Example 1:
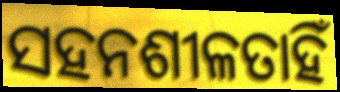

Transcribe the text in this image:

ସହନଶୀଳତାହିଁ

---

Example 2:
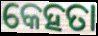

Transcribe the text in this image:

କେହତା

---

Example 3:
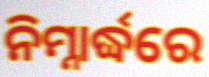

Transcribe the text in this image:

ନିମ୍ନାର୍ଦ୍ଧରେ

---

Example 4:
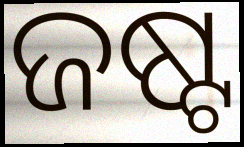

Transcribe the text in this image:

ଜଷ୍ଟ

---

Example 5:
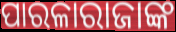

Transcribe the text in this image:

ପାରଳାରାଜାଙ୍କ